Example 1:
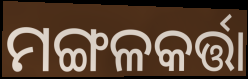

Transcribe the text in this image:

ମଙ୍ଗଳକର୍ତ୍ତା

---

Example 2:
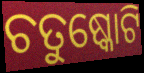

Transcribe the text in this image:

ଚତୁଷ୍କୋଟି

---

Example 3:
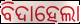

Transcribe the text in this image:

ବିଦାହେଲା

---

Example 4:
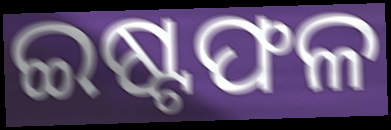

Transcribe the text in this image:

ଇଷ୍ଟଫଳ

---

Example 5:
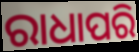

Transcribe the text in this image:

ରାଧାପରି